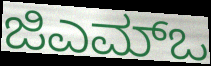
ಜಿಎಮ್ಒ